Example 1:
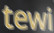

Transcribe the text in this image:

tewi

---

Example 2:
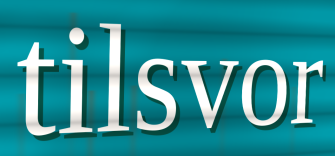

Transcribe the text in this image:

tilsvor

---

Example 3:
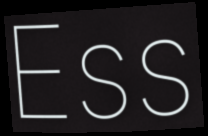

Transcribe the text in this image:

Ess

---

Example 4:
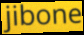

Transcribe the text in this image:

jibone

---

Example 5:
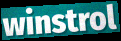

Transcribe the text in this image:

winstrol